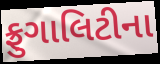
ફ્રુગાલિટીના